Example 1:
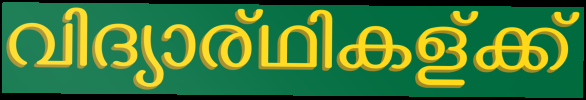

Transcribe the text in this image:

വിദ്യാര്ഥികള്ക്ക്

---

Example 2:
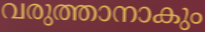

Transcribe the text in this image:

വരുത്താനാകും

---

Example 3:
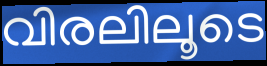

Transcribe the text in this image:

വിരലിലൂടെ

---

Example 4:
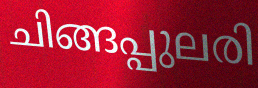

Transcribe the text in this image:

ചിങ്ങപ്പുലരി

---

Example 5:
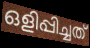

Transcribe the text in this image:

ഒളിപ്പിച്ചത്